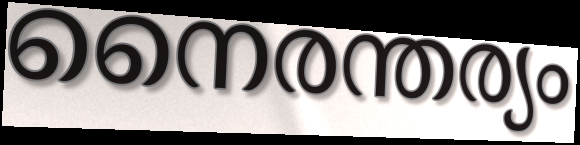
നൈരന്തര്യം